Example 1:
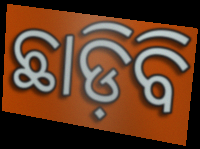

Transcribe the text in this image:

ଛାଡ଼ିବି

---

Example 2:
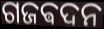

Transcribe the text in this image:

ଗଜଵଦନ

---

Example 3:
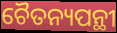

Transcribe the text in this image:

ଚୈତନ୍ୟପନ୍ଥୀ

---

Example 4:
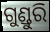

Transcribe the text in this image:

ଗୁଣ୍ଡୁରି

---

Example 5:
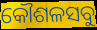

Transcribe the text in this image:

କୌଶଳସବୁ